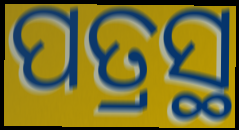
ପତ୍ରସ୍ଥ